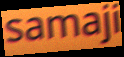
samaji